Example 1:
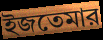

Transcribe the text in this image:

ইজতেমার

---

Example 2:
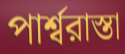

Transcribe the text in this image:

পার্শ্বরাস্তা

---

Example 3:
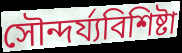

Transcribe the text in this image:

সৌন্দর্য্যবিশিষ্টা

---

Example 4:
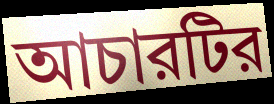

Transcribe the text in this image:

আচারটির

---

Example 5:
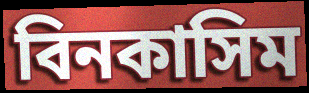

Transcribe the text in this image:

বিনকাসিম